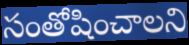
సంతోషించాలని